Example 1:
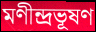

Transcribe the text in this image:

মণীন্দ্রভূষণ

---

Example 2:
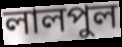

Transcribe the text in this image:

লালপুল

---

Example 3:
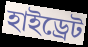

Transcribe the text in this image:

হাইড্রেট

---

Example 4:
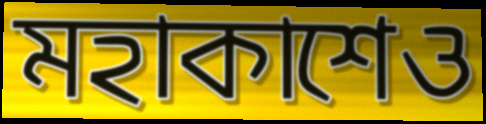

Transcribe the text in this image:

মহাকাশেও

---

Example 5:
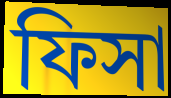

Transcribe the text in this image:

ফিসা